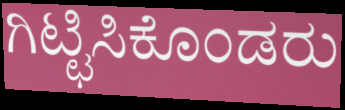
ಗಿಟ್ಟಿಸಿಕೊಂಡರು